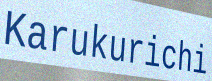
Karukurichi